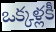
ఒక్కళ్లకీ